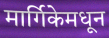
मार्गिकेमधून